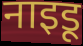
नाइडू